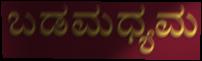
ಬಡಮಧ್ಯಮ